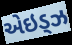
એઇડ્ઝ